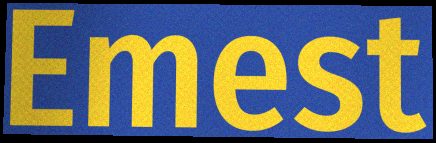
Emest